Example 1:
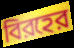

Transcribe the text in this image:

বিরহের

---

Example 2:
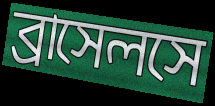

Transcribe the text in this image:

ব্রাসেলসে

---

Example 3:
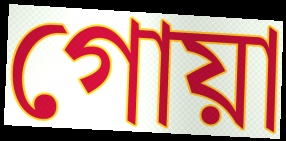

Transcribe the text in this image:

গোয়া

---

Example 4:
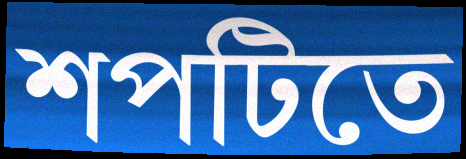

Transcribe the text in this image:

শপটিতে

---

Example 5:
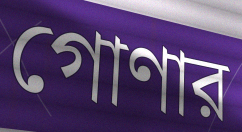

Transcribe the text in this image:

গোণার